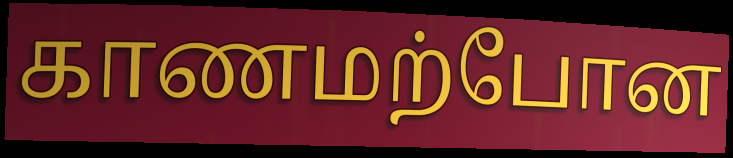
காணமற்போன